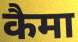
कैमा